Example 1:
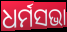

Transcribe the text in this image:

ଧର୍ମସଭା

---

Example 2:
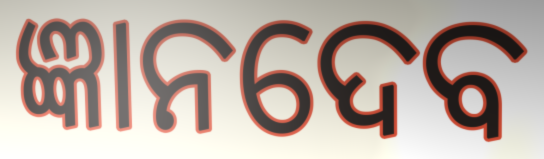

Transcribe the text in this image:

ଜ୍ଞାନଦେବ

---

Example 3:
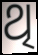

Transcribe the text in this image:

ଥି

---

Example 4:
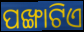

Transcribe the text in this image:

ପଙ୍ଖାଟିଏ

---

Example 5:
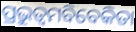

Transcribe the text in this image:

ପ୍ରଭୁତ୍ୱମବିବେକିତା